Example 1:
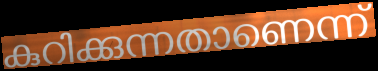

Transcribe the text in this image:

കുറിക്കുന്നതാണെന്ന്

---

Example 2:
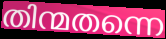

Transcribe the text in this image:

തിന്മതന്നെ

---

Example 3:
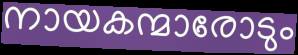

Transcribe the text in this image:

നായകന്മാരോടും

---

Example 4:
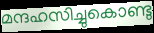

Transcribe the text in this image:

മന്ദഹസിച്ചുകൊണ്ടു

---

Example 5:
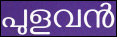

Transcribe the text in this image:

പുളവൻ